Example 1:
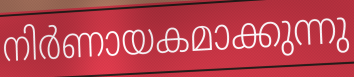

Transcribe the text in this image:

നിർണായകമാക്കുന്നു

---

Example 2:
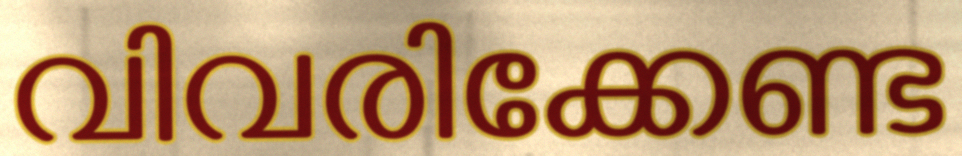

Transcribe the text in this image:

വിവരിക്കേണ്ട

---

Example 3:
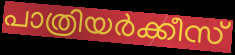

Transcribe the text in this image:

പാത്രിയർക്കീസ്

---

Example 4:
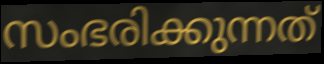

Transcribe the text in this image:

സംഭരിക്കുന്നത്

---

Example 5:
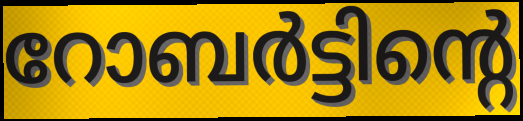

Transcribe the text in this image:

റോബർട്ടിന്റെ